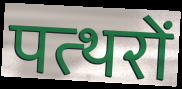
पत्‍थरों